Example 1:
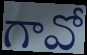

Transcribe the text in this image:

గావో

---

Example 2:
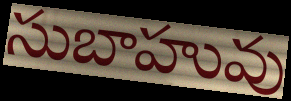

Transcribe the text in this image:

సుబాహువు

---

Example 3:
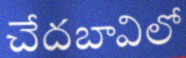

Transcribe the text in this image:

చేదబావిలో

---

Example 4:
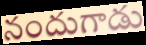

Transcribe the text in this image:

నందుగాడు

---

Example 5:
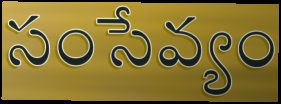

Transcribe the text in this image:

సంసేవ్యం